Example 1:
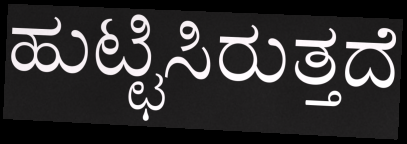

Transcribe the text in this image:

ಹುಟ್ಟಿಸಿರುತ್ತದೆ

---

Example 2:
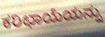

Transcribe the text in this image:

ಕರಿಛಾಯೆಯನ್ನು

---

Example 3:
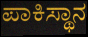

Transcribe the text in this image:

ಪಾಕಿಸ್ಥಾನ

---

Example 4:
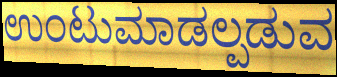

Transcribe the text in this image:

ಉಂಟುಮಾಡಲ್ಪಡುವ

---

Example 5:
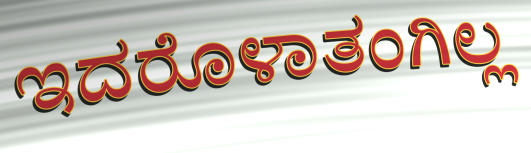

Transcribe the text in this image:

ಇದರೊಳಾತಂಗಿಲ್ಲ